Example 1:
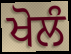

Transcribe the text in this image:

ਖੋਲੰ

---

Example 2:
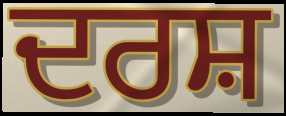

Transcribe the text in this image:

ਦਰਸ਼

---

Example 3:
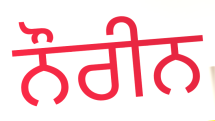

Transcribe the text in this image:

ਨੌਰੀਨ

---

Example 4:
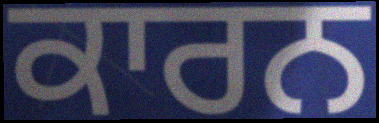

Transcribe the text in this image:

ਕਾਰਨ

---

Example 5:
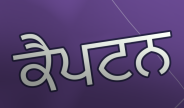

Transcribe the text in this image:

ਕੈਪਟਨ